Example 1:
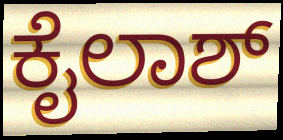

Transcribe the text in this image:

ಕೈಲಾಶ್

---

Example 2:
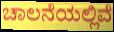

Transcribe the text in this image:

ಚಾಲನೆಯಲ್ಲಿವೆ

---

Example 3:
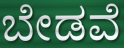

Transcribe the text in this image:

ಬೇಡವೆ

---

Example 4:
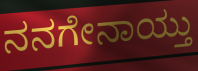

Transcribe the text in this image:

ನನಗೇನಾಯ್ತು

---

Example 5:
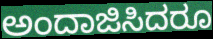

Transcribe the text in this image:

ಅಂದಾಜಿಸಿದರೂ